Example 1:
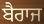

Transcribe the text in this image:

ਬੈਰਾਜ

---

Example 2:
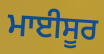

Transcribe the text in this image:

ਮਾਈਸੂਰ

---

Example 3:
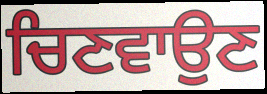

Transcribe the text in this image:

ਚਿਣਵਾਉਣ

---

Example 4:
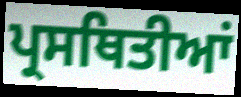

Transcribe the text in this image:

ਪ੍ਰਸਥਿਤੀਆਂ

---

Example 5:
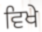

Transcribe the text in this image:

ਵਿਖੇ